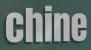
chine